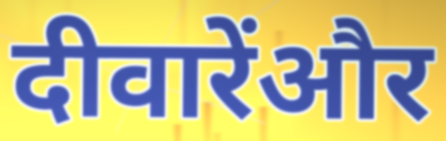
दीवारेंऔर